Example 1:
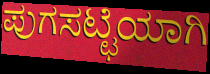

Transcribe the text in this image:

ಪುಗಸಟ್ಟೆಯಾಗಿ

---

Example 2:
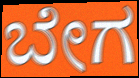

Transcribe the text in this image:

ಬೇಗ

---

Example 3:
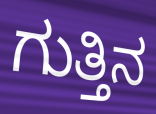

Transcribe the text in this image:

ಗುತ್ತಿನ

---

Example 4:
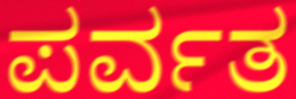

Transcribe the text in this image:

ಪರ್ವತ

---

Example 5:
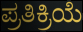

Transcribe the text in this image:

ಪ್ರತಿಕ್ರಿಯೆ